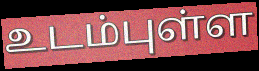
உடம்புள்ள